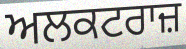
ਅਲਕਟਰਾਜ਼